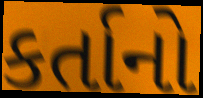
કર્તાનો